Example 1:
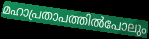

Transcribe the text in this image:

മഹാപ്രതാപത്തിൽപോലും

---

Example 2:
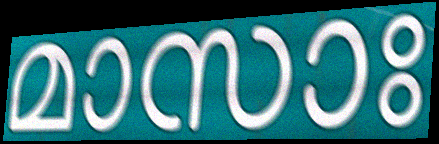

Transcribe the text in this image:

മാസാഃ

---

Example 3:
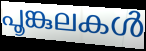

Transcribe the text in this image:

പൂങ്കുലകൾ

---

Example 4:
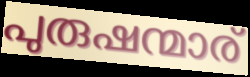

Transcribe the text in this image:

പുരുഷന്മാര്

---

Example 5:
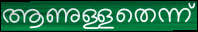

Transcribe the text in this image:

ആണുള്ളതെന്ന്